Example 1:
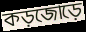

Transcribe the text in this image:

কড়জোড়ে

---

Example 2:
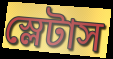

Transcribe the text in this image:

স্লেটাস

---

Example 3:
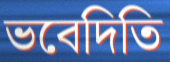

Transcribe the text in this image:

ভবেদিতি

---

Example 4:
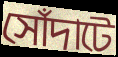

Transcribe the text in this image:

সোঁদাটে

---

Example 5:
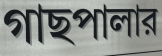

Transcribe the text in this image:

গাছপালার